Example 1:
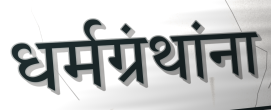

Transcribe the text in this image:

धर्मग्रंथांना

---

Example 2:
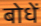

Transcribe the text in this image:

बोधें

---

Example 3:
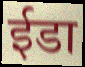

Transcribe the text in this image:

ईडा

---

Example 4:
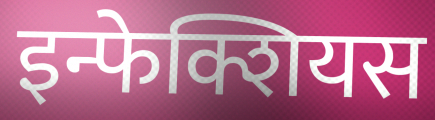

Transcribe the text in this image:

इन्फेक्शियस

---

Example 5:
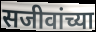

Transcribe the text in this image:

सजीवांच्या